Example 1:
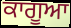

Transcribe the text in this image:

ਕਾਗੂਆ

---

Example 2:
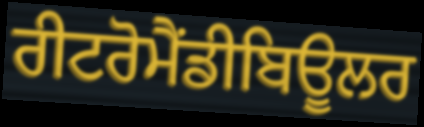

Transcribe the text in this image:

ਰੀਟਰੋਮੈਂਡੀਬਿਊਲਰ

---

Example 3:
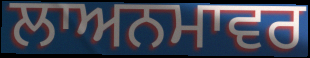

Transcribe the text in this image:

ਲਾਅਨਮਾਵਰ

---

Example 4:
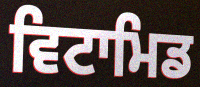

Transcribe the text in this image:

ਵਿਟਾਮਿਡ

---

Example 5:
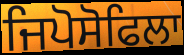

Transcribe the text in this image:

ਜਿਪੋਸੋਫਿਲਾ